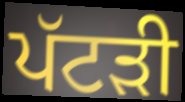
ਪੱਟੜੀ